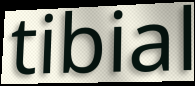
tibial